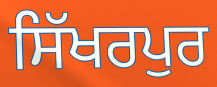
ਸਿੱਖਰਪੁਰ